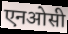
एनओसी